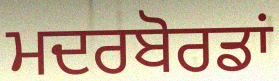
ਮਦਰਬੋਰਡਾਂ